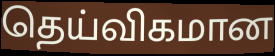
தெய்விகமான